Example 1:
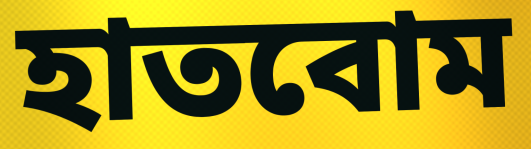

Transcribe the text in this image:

হাতবোম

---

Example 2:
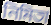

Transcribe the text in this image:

নিমিতা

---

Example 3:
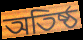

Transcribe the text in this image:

অতিষ্ঠ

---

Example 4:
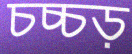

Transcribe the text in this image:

চচ্চড়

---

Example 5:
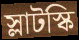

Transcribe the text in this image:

স্লাটস্কি